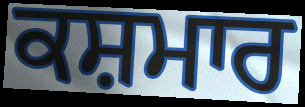
ਕਸ਼ਮਾਰ